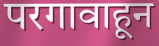
परगावाहून